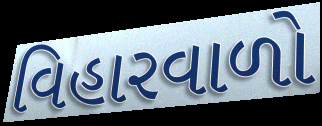
વિહારવાળો